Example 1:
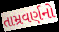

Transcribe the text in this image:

તામ્રવર્ણનો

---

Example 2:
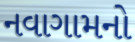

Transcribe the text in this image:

નવાગામનો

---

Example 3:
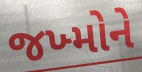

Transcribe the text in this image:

જખ્મોને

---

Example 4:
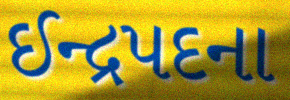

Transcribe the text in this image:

ઈન્દ્રપદના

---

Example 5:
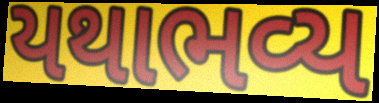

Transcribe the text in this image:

યથાભવ્ય